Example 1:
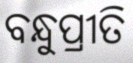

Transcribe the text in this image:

ବନ୍ଧୁପ୍ରୀତି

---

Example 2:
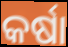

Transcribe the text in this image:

କର୍ଷା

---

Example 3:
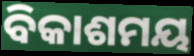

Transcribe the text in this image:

ବିକାଶମୟ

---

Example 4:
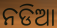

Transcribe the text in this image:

ନଡିଆ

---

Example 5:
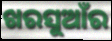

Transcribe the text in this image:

ଖରସୁଆଁର